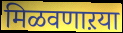
मिळवणाऱया